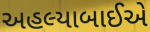
અહલ્યાબાઈએ